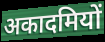
अकादमियों